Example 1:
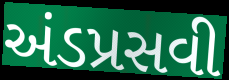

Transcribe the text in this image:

અંડપ્રસવી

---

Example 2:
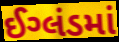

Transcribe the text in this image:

ઈગ્લંડમાં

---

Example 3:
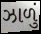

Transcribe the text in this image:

ઝાળું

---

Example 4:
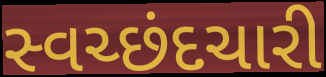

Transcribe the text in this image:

સ્વચ્છંદચારી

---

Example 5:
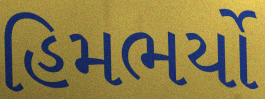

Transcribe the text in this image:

હિમભર્યો